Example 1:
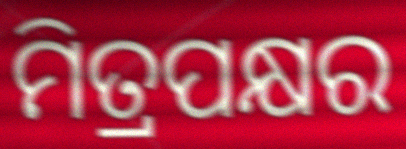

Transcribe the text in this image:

ମିତ୍ରପକ୍ଷର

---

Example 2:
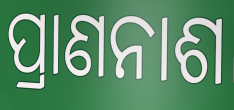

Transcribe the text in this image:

ପ୍ରାଣନାଶ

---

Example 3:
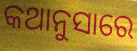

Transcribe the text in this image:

କଥାନୁସାରେ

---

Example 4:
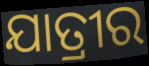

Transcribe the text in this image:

ଯାତ୍ରୀର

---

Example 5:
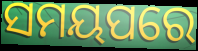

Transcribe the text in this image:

ସମୟପରେ